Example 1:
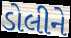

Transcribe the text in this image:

ડોલીને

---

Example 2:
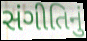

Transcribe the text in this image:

સંગીતિનું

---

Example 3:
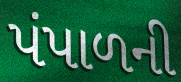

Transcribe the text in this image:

પંપાળની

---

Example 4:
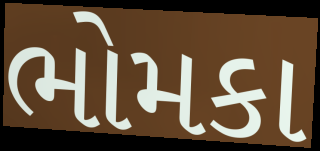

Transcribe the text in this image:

ભોમકા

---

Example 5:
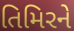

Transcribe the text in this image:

તિમિરને